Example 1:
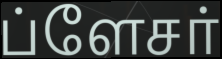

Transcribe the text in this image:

ப்ளேசர்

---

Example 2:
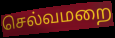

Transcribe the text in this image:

செல்வமறை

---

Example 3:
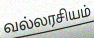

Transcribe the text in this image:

வல்லரசியம்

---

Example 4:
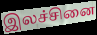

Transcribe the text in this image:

இலச்சினை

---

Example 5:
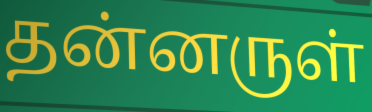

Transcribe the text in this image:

தன்னருள்